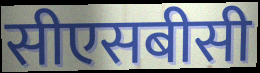
सीएसबीसी